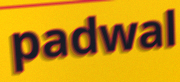
padwal